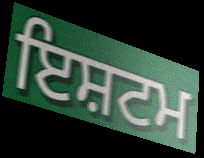
ਇਸ਼ਟਮ